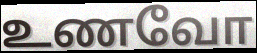
உணவோ